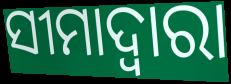
ସୀମାଦ୍ଵାରା